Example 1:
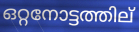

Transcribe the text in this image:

ഒറ്റനോട്ടത്തില്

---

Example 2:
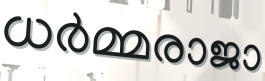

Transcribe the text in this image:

ധർമ്മരാജാ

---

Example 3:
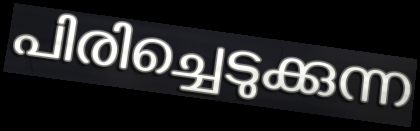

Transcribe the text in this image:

പിരിച്ചെടുക്കുന്ന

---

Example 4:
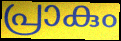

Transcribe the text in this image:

പ്രാകും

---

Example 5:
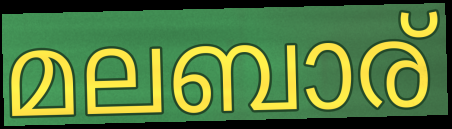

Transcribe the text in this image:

മലബാര്